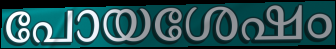
പോയശേഷം